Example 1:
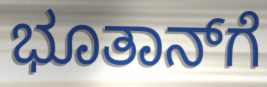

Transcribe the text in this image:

ಭೂತಾನ್‌ಗೆ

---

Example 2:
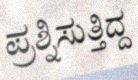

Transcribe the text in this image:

ಪ್ರಶ್ನಿಸುತ್ತಿದ್ದ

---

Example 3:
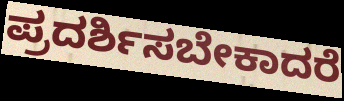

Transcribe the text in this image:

ಪ್ರದರ್ಶಿಸಬೇಕಾದರೆ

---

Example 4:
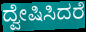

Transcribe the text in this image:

ದ್ವೇಷಿಸಿದರೆ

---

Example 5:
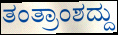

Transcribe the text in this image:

ತಂತ್ರಾಂಶದ್ದು